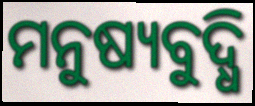
ମନୁଷ୍ୟବୁଦ୍ଧି